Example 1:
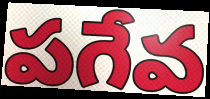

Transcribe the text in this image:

పగేవ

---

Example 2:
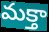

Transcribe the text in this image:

మక్తా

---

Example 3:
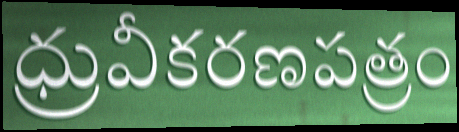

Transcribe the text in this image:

ధ్రువీకరణపత్రం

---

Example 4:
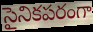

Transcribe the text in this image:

సైనికపరంగా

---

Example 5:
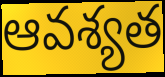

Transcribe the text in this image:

ఆవశ్యత